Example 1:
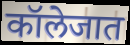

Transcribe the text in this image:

कॉलेजात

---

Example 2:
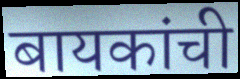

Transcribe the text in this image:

बायकांची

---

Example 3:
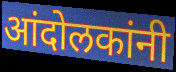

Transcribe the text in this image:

आंदोलकांनी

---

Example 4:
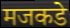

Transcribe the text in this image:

मजकडे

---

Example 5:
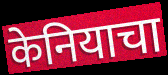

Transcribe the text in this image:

केनियाचा